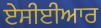
ਏਸੀਈਆਰ